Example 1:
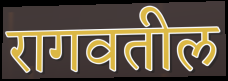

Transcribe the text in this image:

रागवतील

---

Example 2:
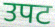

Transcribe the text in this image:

उपट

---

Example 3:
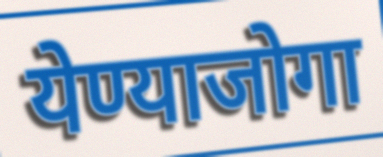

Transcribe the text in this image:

येण्याजोगा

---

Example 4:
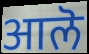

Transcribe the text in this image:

आलॆ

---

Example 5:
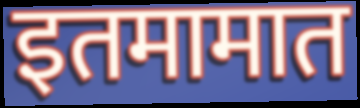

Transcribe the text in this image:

इतमामात